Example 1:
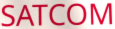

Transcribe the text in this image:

SATCOM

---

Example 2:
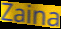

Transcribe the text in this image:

Zaina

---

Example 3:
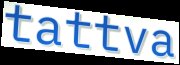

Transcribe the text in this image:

tattva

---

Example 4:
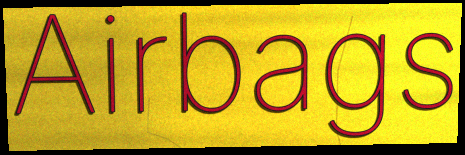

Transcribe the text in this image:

Airbags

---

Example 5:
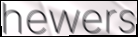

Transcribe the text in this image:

hewers